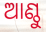
ଆଣ୍ଠୁ